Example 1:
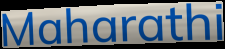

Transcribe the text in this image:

Maharathi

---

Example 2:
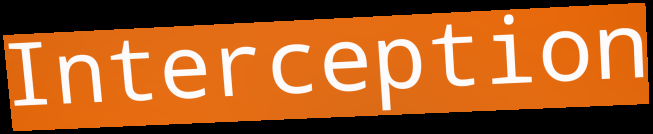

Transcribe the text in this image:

Interception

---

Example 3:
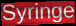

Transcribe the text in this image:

Syringe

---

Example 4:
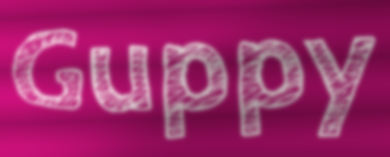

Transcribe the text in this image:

Guppy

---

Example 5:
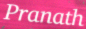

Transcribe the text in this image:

Pranath